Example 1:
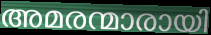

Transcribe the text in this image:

അമരന്മാരായി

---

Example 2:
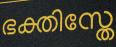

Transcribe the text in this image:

ഭക്തിസ്തേ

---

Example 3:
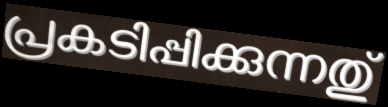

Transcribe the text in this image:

പ്രകടിപ്പിക്കുന്നതു്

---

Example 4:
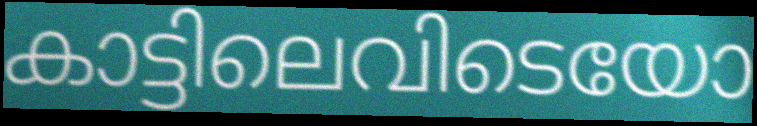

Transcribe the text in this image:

കാട്ടിലെവിടെയോ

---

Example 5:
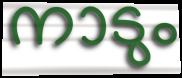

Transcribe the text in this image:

നാടും